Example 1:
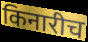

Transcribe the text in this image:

किनारीच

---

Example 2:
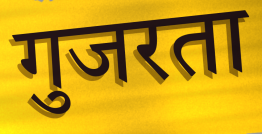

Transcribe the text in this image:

गुजरता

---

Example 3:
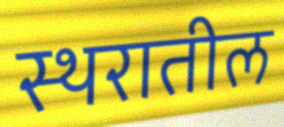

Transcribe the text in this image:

स्थरातील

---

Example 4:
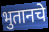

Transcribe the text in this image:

भुतानचे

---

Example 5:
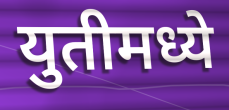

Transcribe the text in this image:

युतीमध्ये